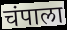
चंपाला